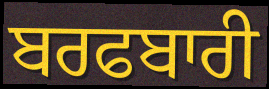
ਬਰਫਬਾਰੀ